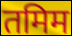
तमिम